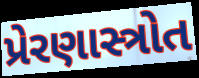
પ્રેરણાસ્ત્રોત